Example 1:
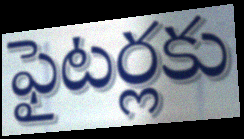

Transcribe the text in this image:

ఫైటర్లకు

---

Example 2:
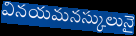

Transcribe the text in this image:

వినయమనస్కులునై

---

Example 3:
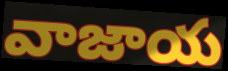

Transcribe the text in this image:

వాజాయ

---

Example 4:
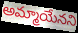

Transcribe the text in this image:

అమ్మాయేనని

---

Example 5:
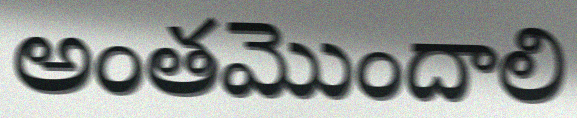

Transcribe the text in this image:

అంతమొందాలి